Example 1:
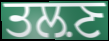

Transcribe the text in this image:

ਤਲ਼ਣ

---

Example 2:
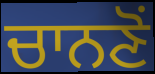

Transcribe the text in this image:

ਚਾਨਣੋਂ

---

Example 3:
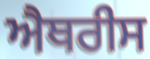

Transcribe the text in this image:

ਐਥਰੀਸ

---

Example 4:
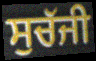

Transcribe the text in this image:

ਸੁਚੱਜੀ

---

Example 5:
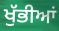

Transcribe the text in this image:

ਖੁੱਭੀਆਂ